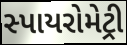
સ્પાયરોમેટ્રી